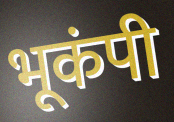
भूकंपी